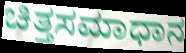
ಚಿತ್ತಸಮಾಧಾನ